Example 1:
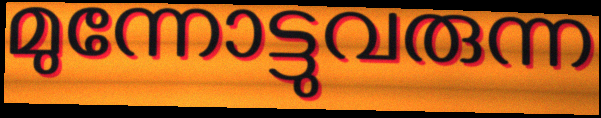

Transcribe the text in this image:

മുന്നോട്ടുവരുന്ന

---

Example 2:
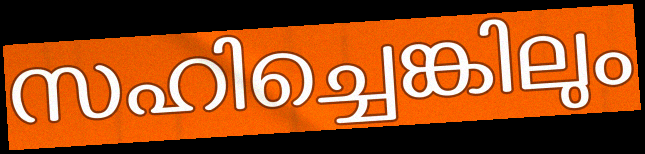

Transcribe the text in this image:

സഹിച്ചെങ്കിലും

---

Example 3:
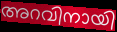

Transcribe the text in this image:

അറവിനായി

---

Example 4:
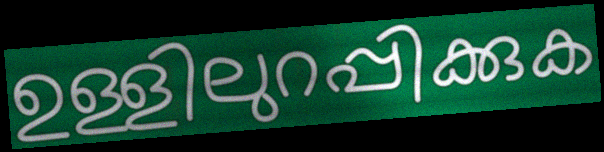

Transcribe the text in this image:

ഉള്ളിലുറപ്പിക്കുക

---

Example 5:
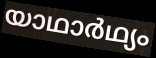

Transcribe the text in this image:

യാഥാർഥ്യം